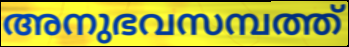
അനുഭവസമ്പത്ത്